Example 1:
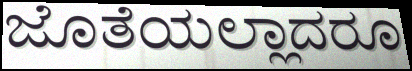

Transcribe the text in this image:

ಜೊತೆಯಲ್ಲಾದರೂ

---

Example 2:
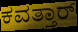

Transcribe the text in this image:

ಕವತ್ತಾರ್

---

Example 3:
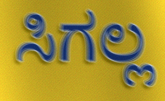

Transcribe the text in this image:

ಸಿಗಲ್ಲ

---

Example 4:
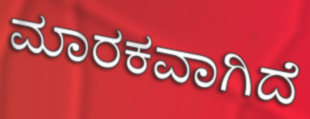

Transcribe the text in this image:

ಮಾರಕವಾಗಿದೆ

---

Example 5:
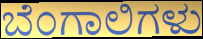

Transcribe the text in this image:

ಬೆಂಗಾಲಿಗಳು